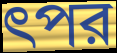
ৎপর